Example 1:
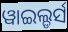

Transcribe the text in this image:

ୱାଇଲ୍ଡର୍ସ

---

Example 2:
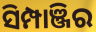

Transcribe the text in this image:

ସିମ୍ପାଞ୍ଜିର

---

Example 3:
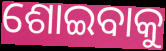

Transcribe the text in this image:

ଶୋଇବାକୁ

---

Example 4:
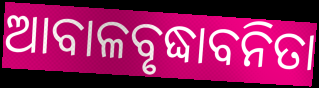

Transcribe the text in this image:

ଆବାଳବୃଦ୍ଧାବନିତା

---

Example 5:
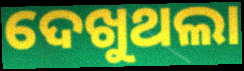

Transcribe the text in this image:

ଦେଖୁଥଲା